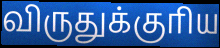
விருதுக்குரிய